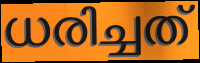
ധരിച്ചത്